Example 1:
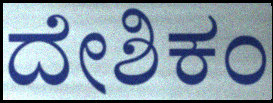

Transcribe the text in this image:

ದೇಶಿಕಂ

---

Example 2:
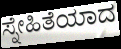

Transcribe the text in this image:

ಸ್ನೇಹಿತೆಯಾದ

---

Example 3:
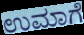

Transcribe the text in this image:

ಉಮಾಗೆ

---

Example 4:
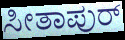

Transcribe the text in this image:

ಸೀತಾಪುರ್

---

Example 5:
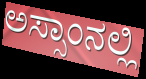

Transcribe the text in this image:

ಅಸ್ಸಾಂನಲ್ಲಿ